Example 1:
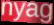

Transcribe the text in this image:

nyag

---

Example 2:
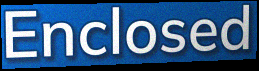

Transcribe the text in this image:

Enclosed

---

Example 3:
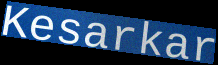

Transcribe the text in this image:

Kesarkar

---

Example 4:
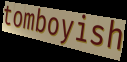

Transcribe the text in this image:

tomboyish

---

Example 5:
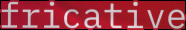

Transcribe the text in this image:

fricative